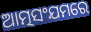
ଆତ୍ମସଂଯମରେ